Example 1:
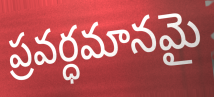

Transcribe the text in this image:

ప్రవర్ధమానమై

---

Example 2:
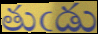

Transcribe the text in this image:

తుఁడు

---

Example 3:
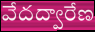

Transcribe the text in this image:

వేదద్వారేణ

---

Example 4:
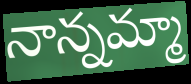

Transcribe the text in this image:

నాన్నమ్మా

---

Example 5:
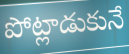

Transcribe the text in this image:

పోట్లాడుకునే